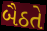
બૈઠતે